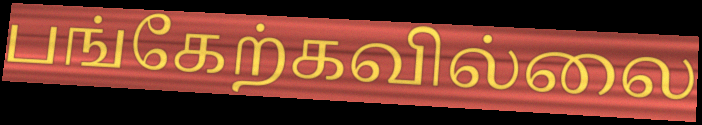
பங்கேற்கவில்லை